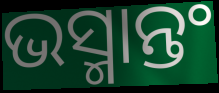
ଭସ୍ମାନ୍ତଂ